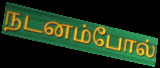
நடனம்போல்